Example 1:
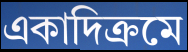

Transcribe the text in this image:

একাদিক্ৰমে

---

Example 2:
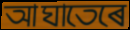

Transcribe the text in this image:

আঘাতেৰে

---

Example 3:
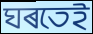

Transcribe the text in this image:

ঘৰতেই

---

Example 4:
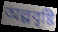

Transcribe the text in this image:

অল্পবৃষ্টি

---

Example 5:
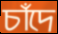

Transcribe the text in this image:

চাঁদে